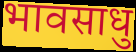
भावसाधु